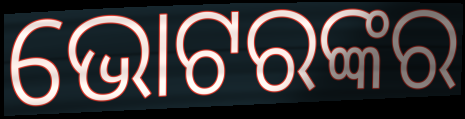
ଭୋଟରଙ୍କର